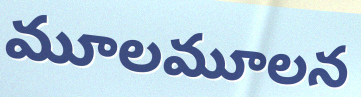
మూలమూలన